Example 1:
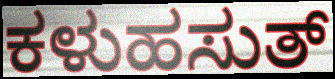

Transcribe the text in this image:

ಕಳುಹಸುತ್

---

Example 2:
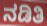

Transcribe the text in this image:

ನಡಿತಿ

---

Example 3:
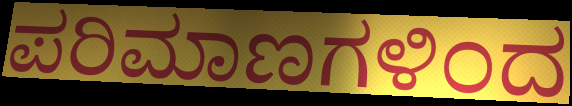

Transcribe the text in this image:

ಪರಿಮಾಣಗಳಿಂದ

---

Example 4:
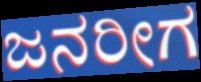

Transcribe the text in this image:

ಜನರೀಗ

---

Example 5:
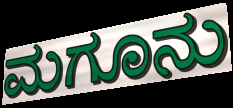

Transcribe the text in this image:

ಮಗೂನು